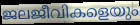
ജലജീവികളെയും